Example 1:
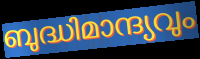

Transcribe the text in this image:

ബുദ്ധിമാന്ദ്യവും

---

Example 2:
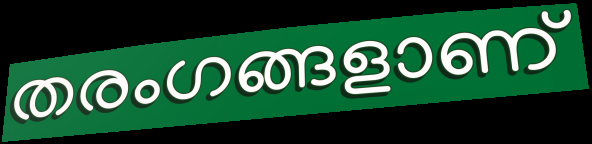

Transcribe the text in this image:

തരംഗങ്ങളാണ്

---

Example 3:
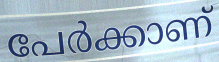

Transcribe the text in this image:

പേർക്കാണ്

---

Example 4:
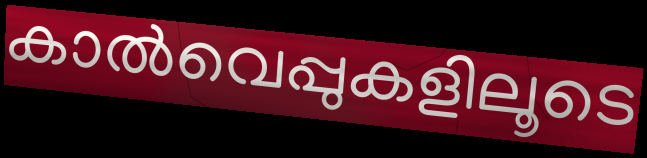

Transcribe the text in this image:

കാൽവെപ്പുകളിലൂടെ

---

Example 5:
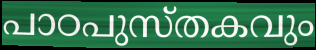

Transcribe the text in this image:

പാഠപുസ്തകവും